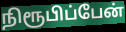
நிரூபிப்பேன்